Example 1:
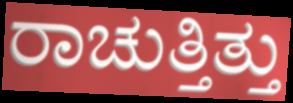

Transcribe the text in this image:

ರಾಚುತ್ತಿತ್ತು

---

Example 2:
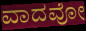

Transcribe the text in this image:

ವಾದವೋ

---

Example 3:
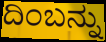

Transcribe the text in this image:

ದಿಂಬನ್ನು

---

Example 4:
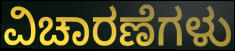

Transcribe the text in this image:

ವಿಚಾರಣೆಗಳು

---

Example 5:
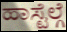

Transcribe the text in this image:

ಹಾಸ್ಟೆಲ್ಗೆ